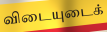
விடையுடைக்